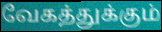
வேகத்துக்கும்